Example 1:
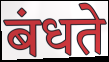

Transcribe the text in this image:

बंधते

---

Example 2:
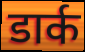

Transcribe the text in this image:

डार्क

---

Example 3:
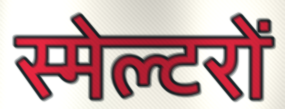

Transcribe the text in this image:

स्मेल्टरों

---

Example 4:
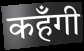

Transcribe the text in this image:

कहँगी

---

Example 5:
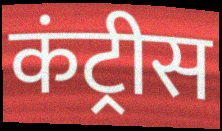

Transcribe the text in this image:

कंट्रीस